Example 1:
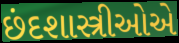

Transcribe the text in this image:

છંદશાસ્ત્રીઓએ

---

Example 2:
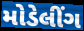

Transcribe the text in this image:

મોડેલીંગ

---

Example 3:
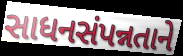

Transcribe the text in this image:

સાધનસંપન્નતાને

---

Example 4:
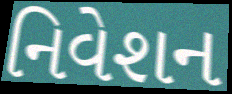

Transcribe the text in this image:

નિવેશન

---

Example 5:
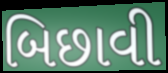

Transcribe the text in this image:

બિછાવી